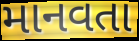
માનવતા